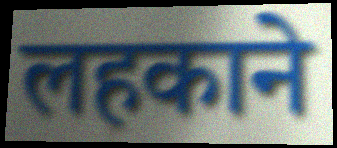
लहकाने